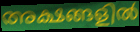
അക്ഷങ്ങളിൽ